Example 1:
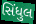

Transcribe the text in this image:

સિંધુલ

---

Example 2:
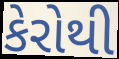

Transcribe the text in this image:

કેરોથી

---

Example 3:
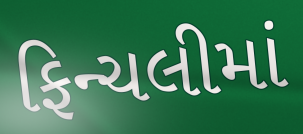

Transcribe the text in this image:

ફિન્ચલીમાં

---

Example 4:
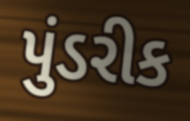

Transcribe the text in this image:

પુંડરીક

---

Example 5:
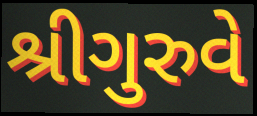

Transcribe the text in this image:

શ્રીગુરુવે